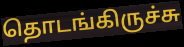
தொடங்கிருச்சு